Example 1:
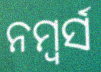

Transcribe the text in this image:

ନମ୍ୱର୍ସ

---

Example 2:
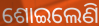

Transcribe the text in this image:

ଶୋଇଲେଣି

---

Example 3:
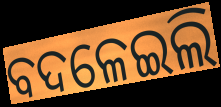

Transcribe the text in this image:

ବଦଳେଇଲି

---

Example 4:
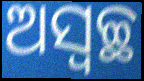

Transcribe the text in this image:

ଅସ୍ଵଚ୍ଛ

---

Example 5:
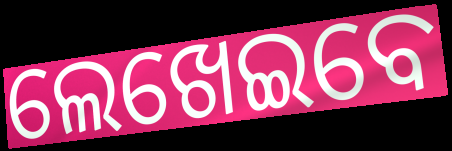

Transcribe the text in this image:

ଲେଖେଇବେ